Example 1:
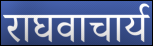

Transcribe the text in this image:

राघवाचार्य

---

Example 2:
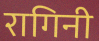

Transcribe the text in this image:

रागिनी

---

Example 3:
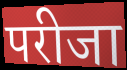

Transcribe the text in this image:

परीजा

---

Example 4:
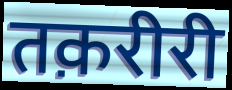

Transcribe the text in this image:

तक़रीरी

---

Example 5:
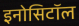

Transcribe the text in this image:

इनोसिटॉल